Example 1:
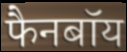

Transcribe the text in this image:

फैनबॉय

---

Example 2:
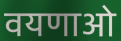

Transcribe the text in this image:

वयणाओ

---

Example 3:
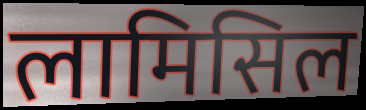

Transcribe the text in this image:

लामिसिल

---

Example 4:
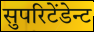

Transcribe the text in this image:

सुपरिटेंडेन्ट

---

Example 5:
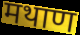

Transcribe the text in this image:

मथाण